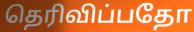
தெரிவிப்பதோ